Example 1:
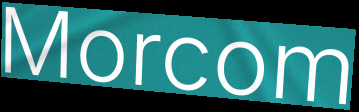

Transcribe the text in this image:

Morcom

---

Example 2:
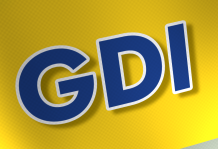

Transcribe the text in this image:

GDI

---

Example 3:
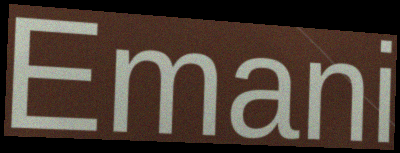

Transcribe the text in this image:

Emani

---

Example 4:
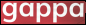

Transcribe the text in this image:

gappa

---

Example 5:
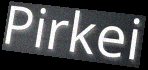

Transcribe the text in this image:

Pirkei